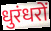
धुरंधरों